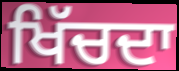
ਖਿੱਚਦਾ